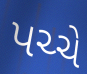
પચ્ચે